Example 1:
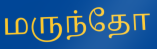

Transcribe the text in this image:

மருந்தோ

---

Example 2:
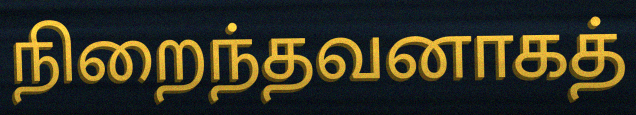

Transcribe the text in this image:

நிறைந்தவனாகத்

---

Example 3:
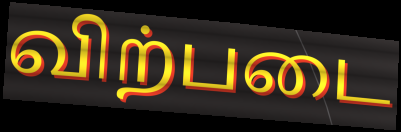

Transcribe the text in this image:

விற்படை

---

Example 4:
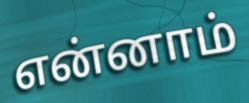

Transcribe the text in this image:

என்னாம்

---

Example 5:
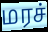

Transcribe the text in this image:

மரச்